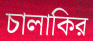
চালাকির